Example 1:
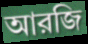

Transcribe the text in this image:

আরজি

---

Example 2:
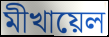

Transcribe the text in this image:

মীখায়েল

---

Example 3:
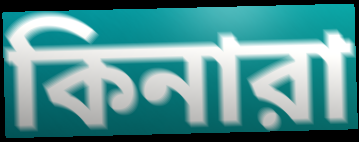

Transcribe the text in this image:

কিনারা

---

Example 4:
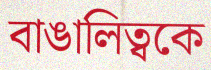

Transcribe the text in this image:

বাঙালিত্বকে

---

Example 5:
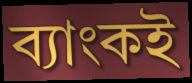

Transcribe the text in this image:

ব্যাংকই